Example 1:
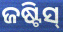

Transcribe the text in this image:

ଜଷ୍ଟିସ୍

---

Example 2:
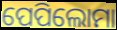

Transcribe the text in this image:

ପେପିଲୋମା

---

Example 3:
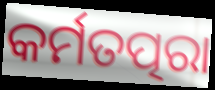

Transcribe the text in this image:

କର୍ମତତ୍ପରା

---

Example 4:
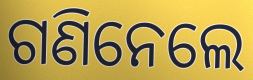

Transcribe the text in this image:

ଗଣିନେଲେ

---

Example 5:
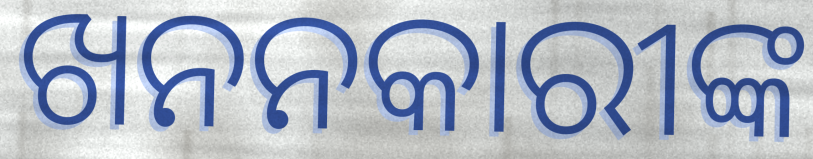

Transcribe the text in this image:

ଖନନକାରୀଙ୍କ